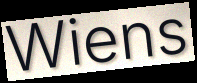
Wiens